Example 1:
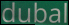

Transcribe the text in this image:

dubal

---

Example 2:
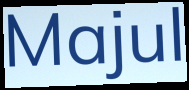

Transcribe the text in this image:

Majul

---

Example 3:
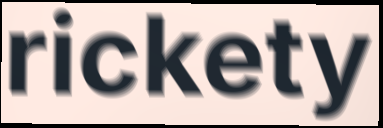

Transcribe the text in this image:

rickety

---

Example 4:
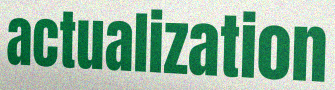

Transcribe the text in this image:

actualization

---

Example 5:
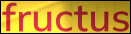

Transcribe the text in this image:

fructus